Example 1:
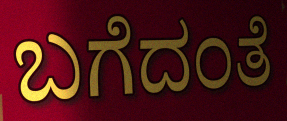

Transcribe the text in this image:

ಬಗೆದಂತೆ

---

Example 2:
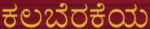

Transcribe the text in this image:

ಕಲಬೆರಕೆಯ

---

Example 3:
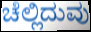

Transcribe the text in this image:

ಚೆಲ್ಲಿದುವು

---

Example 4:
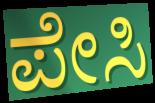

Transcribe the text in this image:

ಪೇಸಿ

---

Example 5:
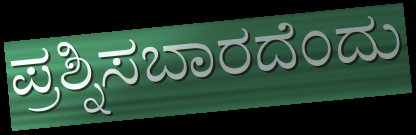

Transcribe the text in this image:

ಪ್ರಶ್ನಿಸಬಾರದೆಂದು